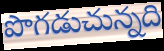
పొగడుచున్నది